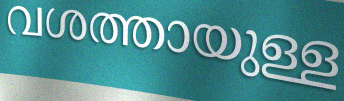
വശത്തായുള്ള